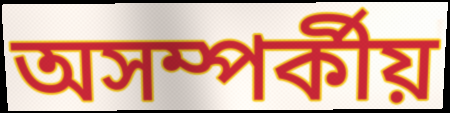
অসম্পর্কীয়